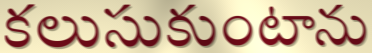
కలుసుకుంటాను